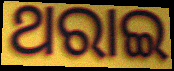
ଥରାଇ